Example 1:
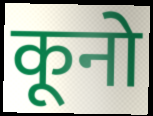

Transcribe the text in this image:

कूनो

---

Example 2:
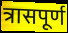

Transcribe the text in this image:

त्रासपूर्ण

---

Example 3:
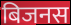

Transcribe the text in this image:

बिजनस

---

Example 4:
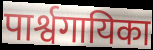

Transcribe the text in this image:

पार्श्वगायिका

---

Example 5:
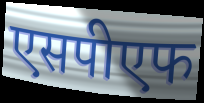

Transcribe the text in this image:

एसपीएफ